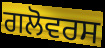
ਗਲੋਵਰਸ